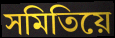
সমিতিয়ে